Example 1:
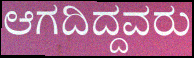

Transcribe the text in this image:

ಆಗದಿದ್ದವರು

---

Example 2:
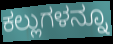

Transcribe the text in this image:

ಕಲ್ಲುಗಳನ್ನೂ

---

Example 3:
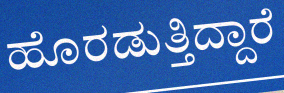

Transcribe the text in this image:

ಹೊರಡುತ್ತಿದ್ದಾರೆ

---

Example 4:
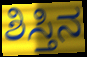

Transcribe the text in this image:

ಶಿಸ್ತಿನ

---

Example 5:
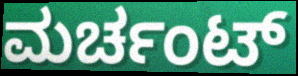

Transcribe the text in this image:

ಮರ್ಚಂಟ್